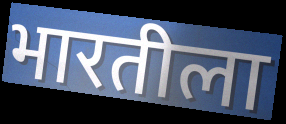
भारतीला